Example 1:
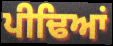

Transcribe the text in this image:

ਪੀਢਿਆਂ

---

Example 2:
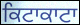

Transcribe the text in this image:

ਕਿਟਾਕਾਟਾ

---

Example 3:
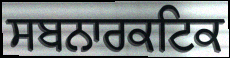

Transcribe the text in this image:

ਸਬਨਾਰਕਟਿਕ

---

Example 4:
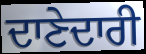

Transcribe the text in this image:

ਦਾਣੇਦਾਰੀ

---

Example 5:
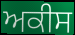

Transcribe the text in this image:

ਅਕੀਸ